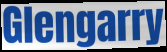
Glengarry